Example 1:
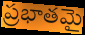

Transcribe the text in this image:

ప్రభాతమై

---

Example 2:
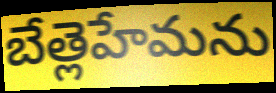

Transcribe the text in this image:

బేత్లెహేమను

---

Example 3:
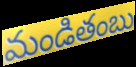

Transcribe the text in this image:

మండితంబు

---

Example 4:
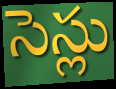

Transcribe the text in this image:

సెస్లు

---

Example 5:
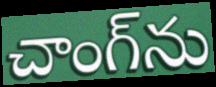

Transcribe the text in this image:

చాంగ్‌ను